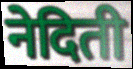
नेदिती